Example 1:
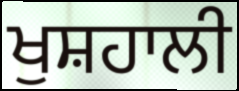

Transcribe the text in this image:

ਖੁਸ਼ਹਾਲੀ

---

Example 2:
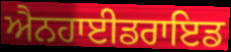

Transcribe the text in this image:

ਐਨਹਾਈਡਰਾਇਡ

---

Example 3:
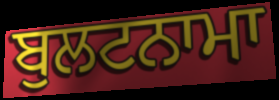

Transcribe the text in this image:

ਬੁਲਟਨਾਮਾ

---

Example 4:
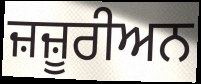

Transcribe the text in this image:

ਜ਼ਜ਼ੂਰੀਅਨ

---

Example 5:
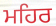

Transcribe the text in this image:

ਮਹਿਰ